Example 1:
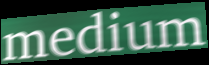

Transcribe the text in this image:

medium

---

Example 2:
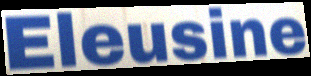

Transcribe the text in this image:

Eleusine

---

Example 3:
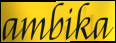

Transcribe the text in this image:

ambika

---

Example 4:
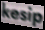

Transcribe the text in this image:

kesip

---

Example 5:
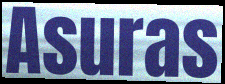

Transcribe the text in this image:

Asuras